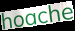
hoache